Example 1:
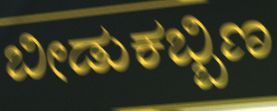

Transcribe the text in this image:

ಬೀಡುಕಬ್ಬಿಣ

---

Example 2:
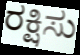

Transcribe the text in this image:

ರಕ್ಷಿಸು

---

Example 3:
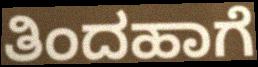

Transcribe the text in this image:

ತಿಂದಹಾಗೆ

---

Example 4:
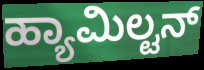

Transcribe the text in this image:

ಹ್ಯಾಮಿಲ್ಟನ್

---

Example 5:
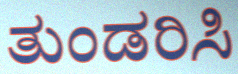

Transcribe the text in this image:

ತುಂಡರಿಸಿ